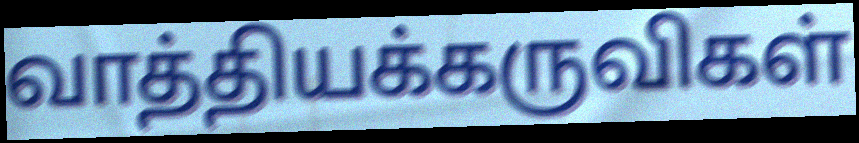
வாத்தியக்கருவிகள்